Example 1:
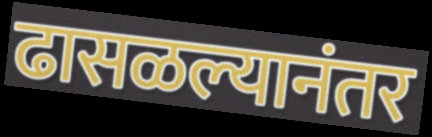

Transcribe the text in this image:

ढासळल्यानंतर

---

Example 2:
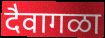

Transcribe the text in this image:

दैवागळा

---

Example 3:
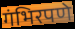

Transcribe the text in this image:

गंभिरपणे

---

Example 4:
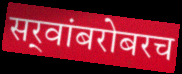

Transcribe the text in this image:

सर्वांबरोबरच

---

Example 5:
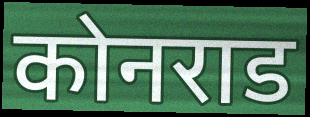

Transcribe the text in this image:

कोनराड